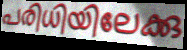
പരിധിയിലേക്കു